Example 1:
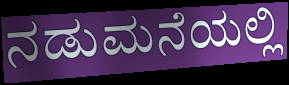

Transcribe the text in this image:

ನಡುಮನೆಯಲ್ಲಿ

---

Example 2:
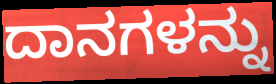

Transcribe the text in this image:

ದಾನಗಳನ್ನು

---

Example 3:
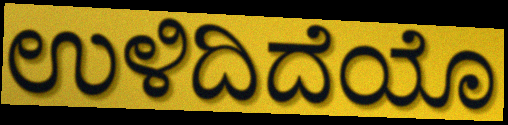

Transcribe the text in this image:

ಉಳಿದಿದೆಯೊ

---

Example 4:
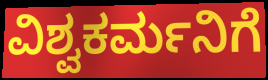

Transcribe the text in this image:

ವಿಶ್ವಕರ್ಮನಿಗೆ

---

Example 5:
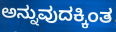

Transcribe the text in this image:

ಅನ್ನುವುದಕ್ಕಿಂತ